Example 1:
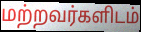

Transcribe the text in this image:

மற்றவர்களிடம்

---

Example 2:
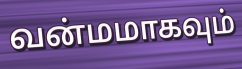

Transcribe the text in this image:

வன்மமாகவும்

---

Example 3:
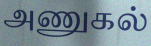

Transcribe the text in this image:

அணுகல்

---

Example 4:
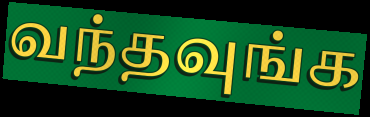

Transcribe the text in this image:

வந்தவுங்க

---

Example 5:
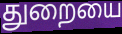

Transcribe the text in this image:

துறையை